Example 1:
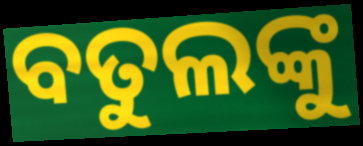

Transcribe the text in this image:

ବତୁଲଙ୍କୁ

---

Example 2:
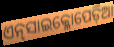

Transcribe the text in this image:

ଏନ୍‌ସାଇକ୍ଳୋପେଡ଼ିଆ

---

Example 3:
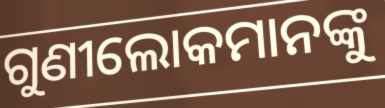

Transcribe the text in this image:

ଗୁଣୀଲୋକମାନଙ୍କୁ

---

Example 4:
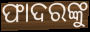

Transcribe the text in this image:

ଫାଦରଙ୍କୁ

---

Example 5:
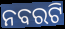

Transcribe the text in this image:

ନବରଟି